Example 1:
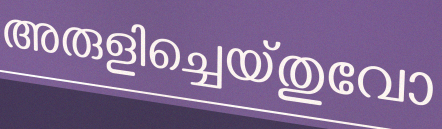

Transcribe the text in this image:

അരുളിച്ചെയ്തുവോ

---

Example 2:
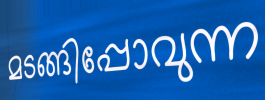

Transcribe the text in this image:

മടങ്ങിപ്പോവുന്ന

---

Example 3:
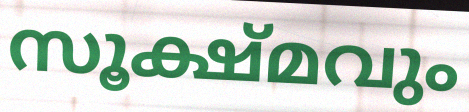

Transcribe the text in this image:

സൂക്ഷ്മവും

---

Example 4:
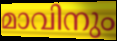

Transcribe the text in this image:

മാവിനും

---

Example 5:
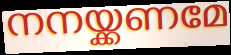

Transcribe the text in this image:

നനയ്ക്കണമേ